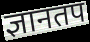
ज्ञानतप